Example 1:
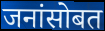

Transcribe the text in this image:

जनांसोबत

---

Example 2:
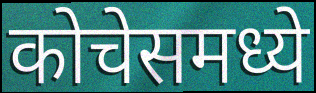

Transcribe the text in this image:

कोचेसमध्ये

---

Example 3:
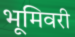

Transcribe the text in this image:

भूमिवरी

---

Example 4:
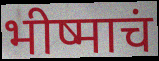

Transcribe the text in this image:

भीष्माचं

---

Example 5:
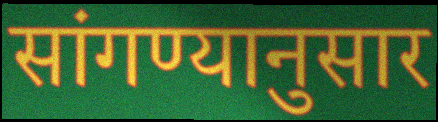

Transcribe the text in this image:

सांगण्यानुसार